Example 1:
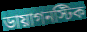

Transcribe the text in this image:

ডায়াগনস্টিক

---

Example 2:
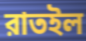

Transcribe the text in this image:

রাতইল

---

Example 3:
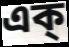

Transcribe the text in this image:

এক্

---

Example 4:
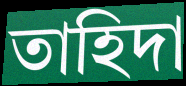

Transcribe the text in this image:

তাহিদা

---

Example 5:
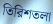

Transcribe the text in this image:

তিরিশতলা